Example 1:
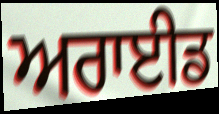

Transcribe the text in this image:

ਅਰਾਈਡ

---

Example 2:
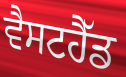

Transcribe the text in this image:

ਵੈਸਟਹੈੱਡ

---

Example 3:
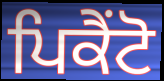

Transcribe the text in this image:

ਪਿਕੈਂਟੋ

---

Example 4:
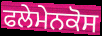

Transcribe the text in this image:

ਫਲੇਮੇਨਕੋਸ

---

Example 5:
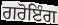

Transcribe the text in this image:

ਗਰੋਇੰਗ